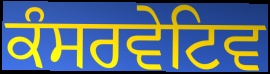
ਕੰਸਰਵੇਟਿਵ